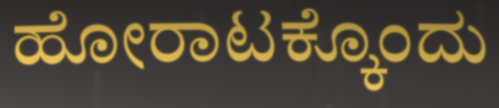
ಹೋರಾಟಕ್ಕೊಂದು